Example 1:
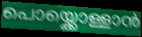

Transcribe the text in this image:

പൊയ്ക്കൊള്ളാൻ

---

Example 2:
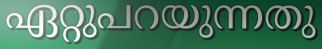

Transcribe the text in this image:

ഏറ്റുപറയുന്നതു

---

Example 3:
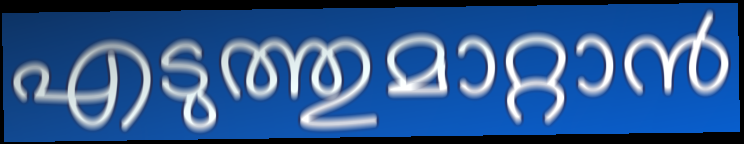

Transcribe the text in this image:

എടുത്തുമാറ്റാൻ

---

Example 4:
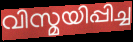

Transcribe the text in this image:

വിസ്മയിപ്പിച്ച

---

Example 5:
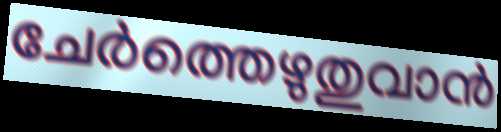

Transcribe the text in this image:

ചേർത്തെഴുതുവാൻ